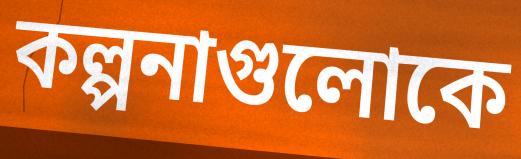
কল্পনাগুলোকে